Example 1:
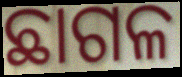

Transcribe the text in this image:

ଛାଗଳ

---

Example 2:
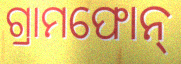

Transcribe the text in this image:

ଗ୍ରାମଫୋନ୍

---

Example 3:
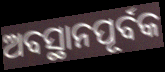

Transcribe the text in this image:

ଅବସ୍ଥାନପୂର୍ବକ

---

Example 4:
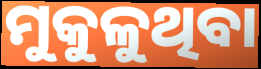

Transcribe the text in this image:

ମୁକୁଳୁଥିବା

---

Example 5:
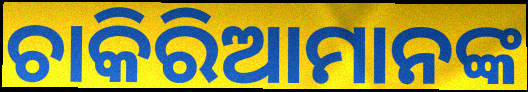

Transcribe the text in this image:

ଚାକିରିଆମାନଙ୍କ